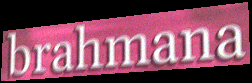
brahmana